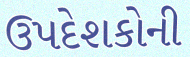
ઉપદેશકોની